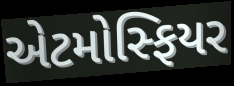
એટમોસ્ફિયર